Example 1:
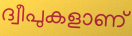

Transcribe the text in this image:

ദ്വീപുകളാണ്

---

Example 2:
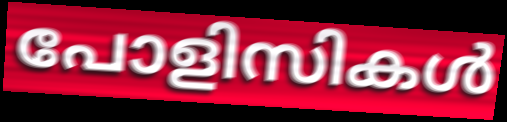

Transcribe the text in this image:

പോളിസികൾ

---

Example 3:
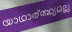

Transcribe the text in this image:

യാഥാര്ത്ഥ്യമല്ല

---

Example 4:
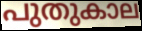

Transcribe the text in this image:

പുതുകാല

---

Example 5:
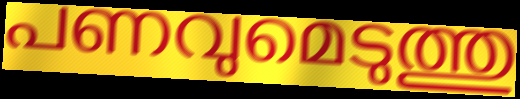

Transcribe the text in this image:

പണവുമെടുത്തു